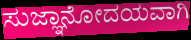
ಸುಜ್ಞಾನೋದಯವಾಗಿ